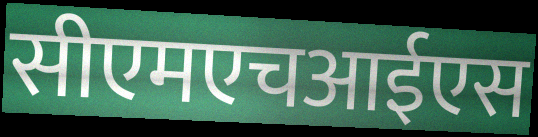
सीएमएचआईएस